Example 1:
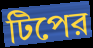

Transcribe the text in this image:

টিপের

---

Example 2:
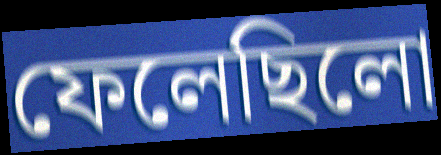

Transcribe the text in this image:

ফেলেছিলো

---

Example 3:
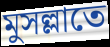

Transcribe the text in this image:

মুসল্লাতে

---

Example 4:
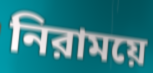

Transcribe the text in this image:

নিরাময়ে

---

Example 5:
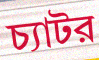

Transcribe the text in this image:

চ্যাটর